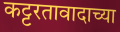
कट्टरतावादाच्या